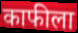
काफीला